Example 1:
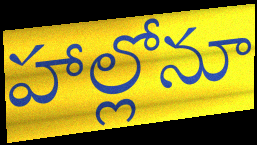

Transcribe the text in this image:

హాల్లోనూ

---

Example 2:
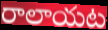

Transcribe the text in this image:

రాలాయట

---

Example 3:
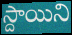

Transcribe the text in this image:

స్దాయిని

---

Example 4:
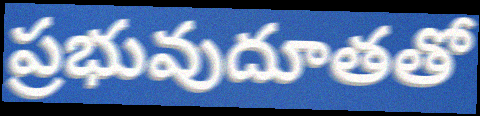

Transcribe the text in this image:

ప్రభువుదూతతో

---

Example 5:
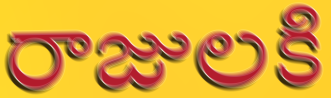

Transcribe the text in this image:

రాజులకి